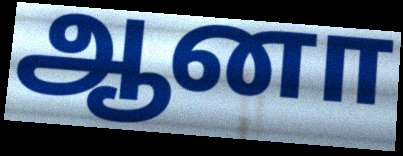
ஆனா